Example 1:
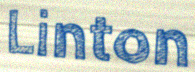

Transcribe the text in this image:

Linton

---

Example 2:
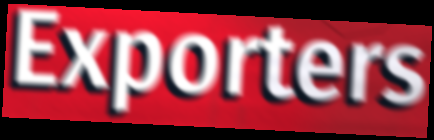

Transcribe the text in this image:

Exporters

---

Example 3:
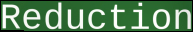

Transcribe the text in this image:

Reduction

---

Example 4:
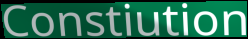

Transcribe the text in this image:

Constiution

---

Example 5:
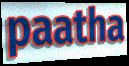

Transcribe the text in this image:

paatha